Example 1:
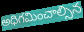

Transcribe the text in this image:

అధిగమించాల్సిన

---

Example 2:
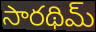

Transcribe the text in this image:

సారథిమ్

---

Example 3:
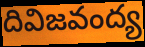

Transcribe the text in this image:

దివిజవంద్య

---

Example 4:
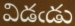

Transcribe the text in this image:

విడఁడు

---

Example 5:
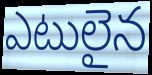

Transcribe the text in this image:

ఎటులైన